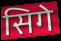
सिगे